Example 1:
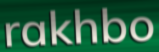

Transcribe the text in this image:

rakhbo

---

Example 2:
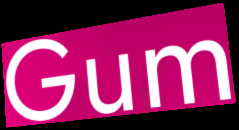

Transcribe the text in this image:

Gum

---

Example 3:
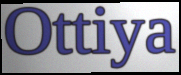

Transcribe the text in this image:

Ottiya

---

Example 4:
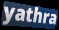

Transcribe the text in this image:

yathra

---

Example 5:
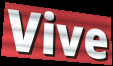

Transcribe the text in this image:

Vive